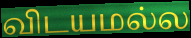
விடயமல்ல